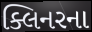
ક્લિનરના